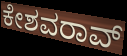
ಕೇಶವರಾವ್